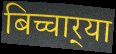
बिच्चार्या